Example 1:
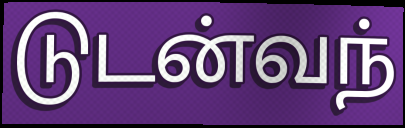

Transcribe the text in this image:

டுடன்வந்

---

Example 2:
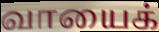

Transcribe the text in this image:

வாயைக்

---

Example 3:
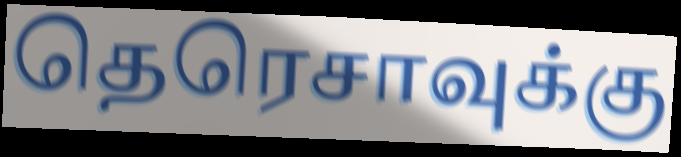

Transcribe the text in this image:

தெரெசாவுக்கு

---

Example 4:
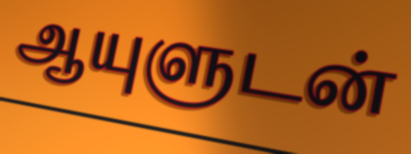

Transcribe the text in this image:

ஆயுளுடன்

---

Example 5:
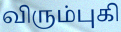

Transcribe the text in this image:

விரும்புகி